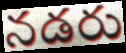
నడరు